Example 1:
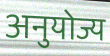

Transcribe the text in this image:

अनुयोज्य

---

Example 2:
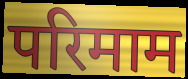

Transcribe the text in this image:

परिमाम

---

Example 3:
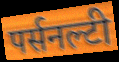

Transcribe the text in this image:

पर्सनल्टी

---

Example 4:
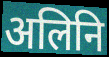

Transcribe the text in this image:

अलिनि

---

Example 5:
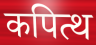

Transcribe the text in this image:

कपित्थ